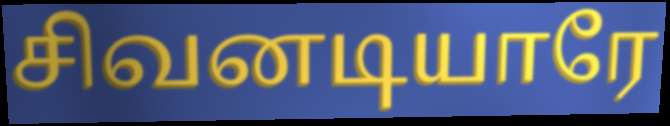
சிவனடியாரே